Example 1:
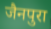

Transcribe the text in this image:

जैनपुरा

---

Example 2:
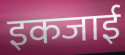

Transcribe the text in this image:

इकजाई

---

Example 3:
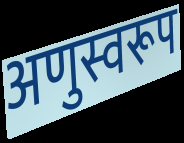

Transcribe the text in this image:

अणुस्वरूप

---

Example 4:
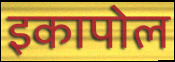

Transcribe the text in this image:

इकापोल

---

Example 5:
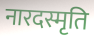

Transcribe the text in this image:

नारदस्मृति